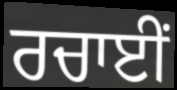
ਰਚਾਈਂ